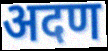
अदण